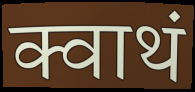
क्वाथं